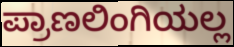
ಪ್ರಾಣಲಿಂಗಿಯಲ್ಲ